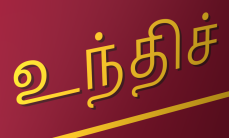
உந்திச்